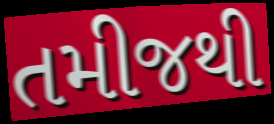
તમીજથી